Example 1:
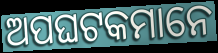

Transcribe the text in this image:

ଅପଘଟକମାନେ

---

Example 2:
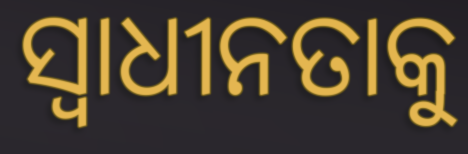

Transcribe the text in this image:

ସ୍ଵାଧୀନତାକୁ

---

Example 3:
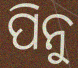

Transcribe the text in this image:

ପିନୁ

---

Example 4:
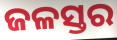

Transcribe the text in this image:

ଜଳସ୍ତର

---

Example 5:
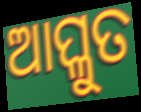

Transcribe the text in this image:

ଆପ୍ଳୁତ